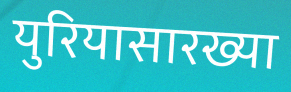
युरियासारख्या